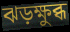
ঝড়ক্ষুব্ধ